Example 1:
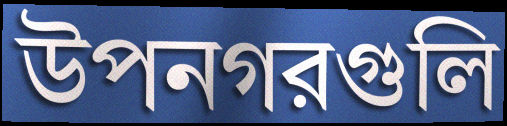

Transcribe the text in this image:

উপনগরগুলি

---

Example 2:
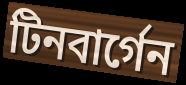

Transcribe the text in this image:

টিনবার্গেন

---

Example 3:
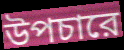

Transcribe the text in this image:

উপচারে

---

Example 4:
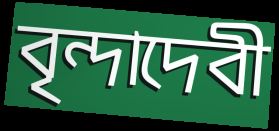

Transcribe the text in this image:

বৃন্দাদেবী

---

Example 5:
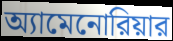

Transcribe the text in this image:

অ্যামেনোরিয়ার